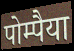
पोम्पैया